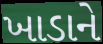
ખાડાને